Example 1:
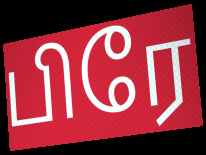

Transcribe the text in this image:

பிரே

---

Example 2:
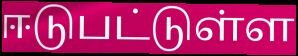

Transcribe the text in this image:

ஈடுபட்டுள்ள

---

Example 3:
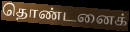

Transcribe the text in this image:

தொண்டனைக்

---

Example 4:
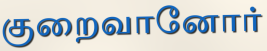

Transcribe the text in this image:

குறைவானோர்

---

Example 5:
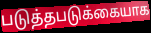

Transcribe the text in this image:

படுத்தபடுக்கையாக